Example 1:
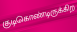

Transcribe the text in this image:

குடிகொண்டிருக்கிற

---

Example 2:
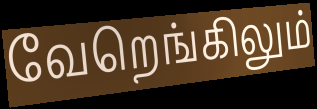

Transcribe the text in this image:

வேறெங்கிலும்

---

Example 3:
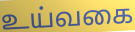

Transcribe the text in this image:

உய்வகை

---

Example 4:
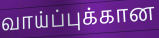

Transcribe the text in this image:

வாய்ப்புக்கான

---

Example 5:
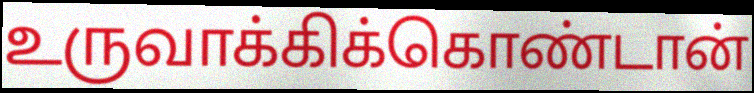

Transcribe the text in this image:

உருவாக்கிக்கொண்டான்